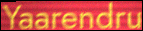
Yaarendru